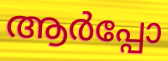
ആർപ്പോ